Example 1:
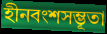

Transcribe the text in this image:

হীনবংশসম্ভূতা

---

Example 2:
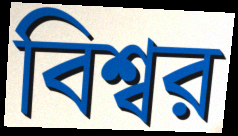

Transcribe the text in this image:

বিশ্বর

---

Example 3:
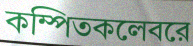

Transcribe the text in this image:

কম্পিতকলেবরে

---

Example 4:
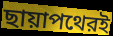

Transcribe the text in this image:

ছায়াপথেরই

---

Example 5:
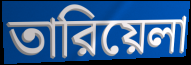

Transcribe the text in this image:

তারিয়েলা